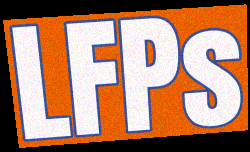
LFPs